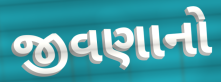
જીવણાનો